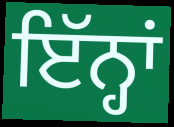
ਇੱਨ੍ਹਾਂ